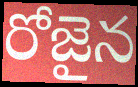
రోజైన